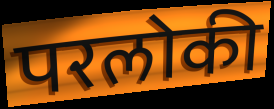
परलोकी